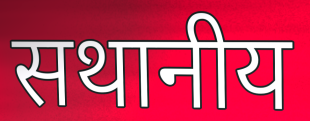
सथानीय